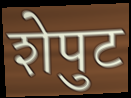
शेपुट